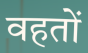
वहतों